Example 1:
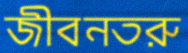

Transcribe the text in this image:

জীবনতরু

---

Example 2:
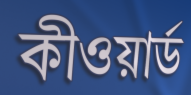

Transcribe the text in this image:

কীওয়ার্ড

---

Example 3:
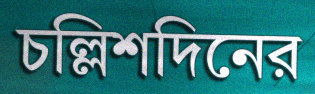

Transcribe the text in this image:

চল্লিশদিনের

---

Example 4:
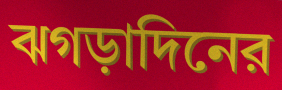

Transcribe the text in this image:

ঝগড়াদিনের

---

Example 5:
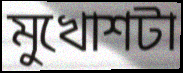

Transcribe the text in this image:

মুখোশটা